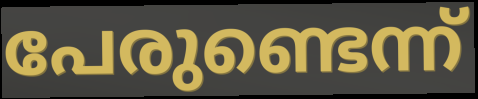
പേരുണ്ടെന്ന്